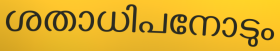
ശതാധിപനോടും